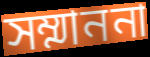
সম্মাননা